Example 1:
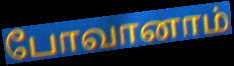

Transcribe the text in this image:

போவானாம்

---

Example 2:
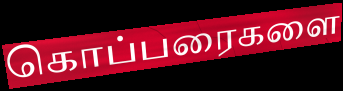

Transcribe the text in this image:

கொப்பரைகளை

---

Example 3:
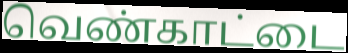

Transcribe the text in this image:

வெண்காட்டை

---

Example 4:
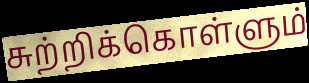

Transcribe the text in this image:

சுற்றிக்கொள்ளும்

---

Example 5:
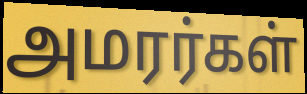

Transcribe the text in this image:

அமரர்கள்